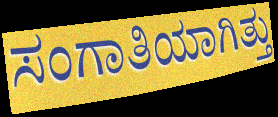
ಸಂಗಾತಿಯಾಗಿತ್ತು